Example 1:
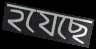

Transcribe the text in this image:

হযেছে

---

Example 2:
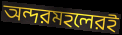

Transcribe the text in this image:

অন্দরমহলেরই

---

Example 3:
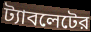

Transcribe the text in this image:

ট্যাবলেটের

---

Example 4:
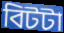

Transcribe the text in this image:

বিটটা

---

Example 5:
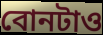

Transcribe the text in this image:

বোনটাও